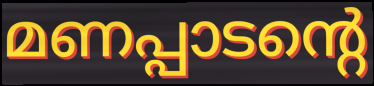
മണപ്പാടന്റെ